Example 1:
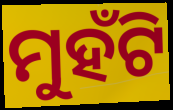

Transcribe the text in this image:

ମୁହଁଟି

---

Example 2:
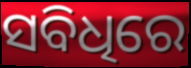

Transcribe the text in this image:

ସବିଧିରେ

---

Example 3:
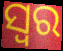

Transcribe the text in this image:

ସ୍ବର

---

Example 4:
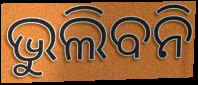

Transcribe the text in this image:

ଭୁଲିବନି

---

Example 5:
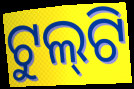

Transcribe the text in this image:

ଟୁଲ୍‌ଟି